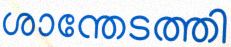
ശാന്തേടത്തി